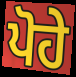
ਪੋਹੇ